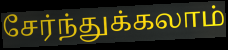
சேர்ந்துக்கலாம்